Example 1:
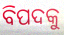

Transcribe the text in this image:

ବିପଦକୁ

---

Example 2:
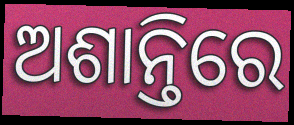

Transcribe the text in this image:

ଅଶାନ୍ତିରେ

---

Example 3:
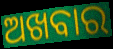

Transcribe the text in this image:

ଅଖବାର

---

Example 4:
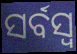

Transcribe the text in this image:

ସର୍ବସ୍ୱ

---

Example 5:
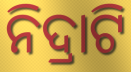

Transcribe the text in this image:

ନିଦ୍ରାଟି